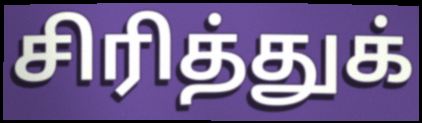
சிரித்துக்